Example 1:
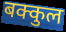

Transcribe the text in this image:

बक्कुल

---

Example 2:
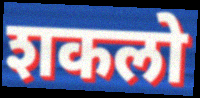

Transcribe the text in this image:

शकलो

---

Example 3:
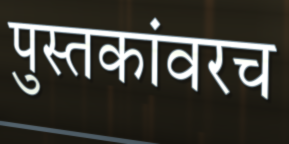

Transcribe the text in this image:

पुस्तकांवरच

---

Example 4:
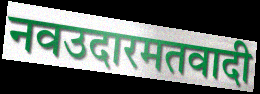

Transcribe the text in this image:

नवउदारमतवादी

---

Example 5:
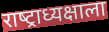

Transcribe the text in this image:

राष्ट्राध्यक्षाला